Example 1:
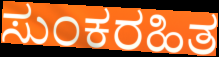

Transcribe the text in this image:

ಸುಂಕರಹಿತ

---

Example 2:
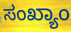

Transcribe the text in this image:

ಸಂಖ್ಯಾಂ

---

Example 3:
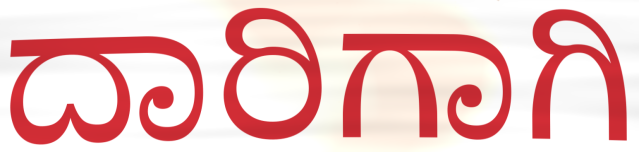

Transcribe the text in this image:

ದಾರಿಗಾಗಿ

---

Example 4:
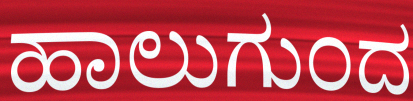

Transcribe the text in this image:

ಹಾಲುಗುಂದ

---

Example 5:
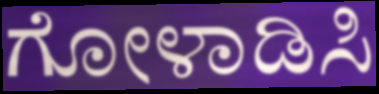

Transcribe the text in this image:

ಗೋಳಾಡಿಸಿ